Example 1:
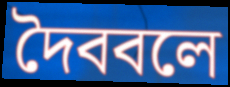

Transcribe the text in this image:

দৈববলে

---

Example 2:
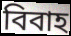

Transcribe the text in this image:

বিবাহ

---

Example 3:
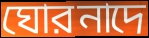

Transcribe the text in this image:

ঘোরনাদে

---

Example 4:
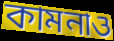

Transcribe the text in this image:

কামনাও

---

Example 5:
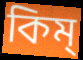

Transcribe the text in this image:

কিম্